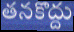
తనకొద్దు